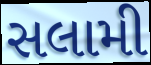
સલામી